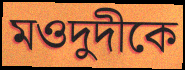
মওদুদীকে